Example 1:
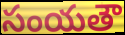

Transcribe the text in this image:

సంయతౌ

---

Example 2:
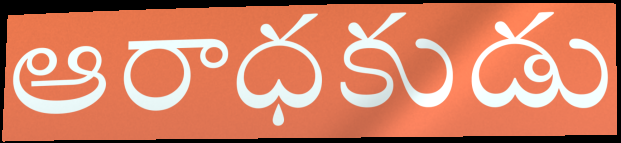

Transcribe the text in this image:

ఆరాధకుడు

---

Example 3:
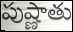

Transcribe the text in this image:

పుష్ణాతు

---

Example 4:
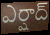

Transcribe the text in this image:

ఎర్షాద్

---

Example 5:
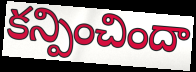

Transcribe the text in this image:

కన్పించిందా